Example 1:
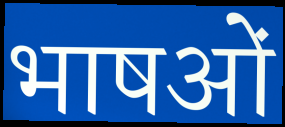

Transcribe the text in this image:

भाषओं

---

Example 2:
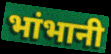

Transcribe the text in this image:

भांभानी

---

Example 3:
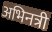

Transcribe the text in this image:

अभिनत्री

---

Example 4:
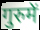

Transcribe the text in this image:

गुरुमें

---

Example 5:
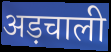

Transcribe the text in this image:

अड़चाली